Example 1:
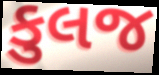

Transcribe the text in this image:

કુલજ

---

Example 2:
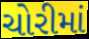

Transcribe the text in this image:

ચોરીમાં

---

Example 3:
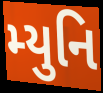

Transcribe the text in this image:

મ્યુનિ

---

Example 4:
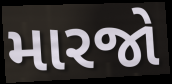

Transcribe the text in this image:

મારજો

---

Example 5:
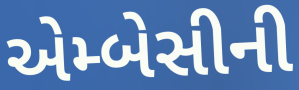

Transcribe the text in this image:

એમ્બેસીની